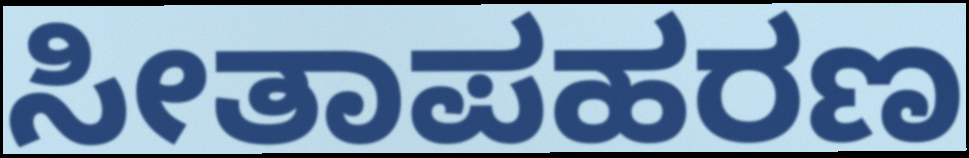
ಸೀತಾಪಹರಣ